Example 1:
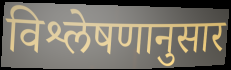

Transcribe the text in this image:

विश्लेषणानुसार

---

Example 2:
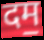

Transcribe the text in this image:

दम॒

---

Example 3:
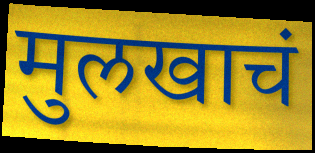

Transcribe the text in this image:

मुलखाचं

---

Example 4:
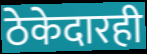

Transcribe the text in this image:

ठेकेदारही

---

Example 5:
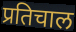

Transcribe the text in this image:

प्रतिचाल